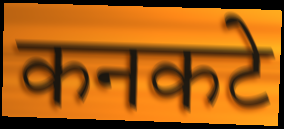
कनकटे